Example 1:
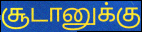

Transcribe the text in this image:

சூடானுக்கு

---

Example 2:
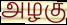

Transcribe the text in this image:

அழகு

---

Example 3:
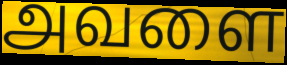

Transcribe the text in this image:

அவளை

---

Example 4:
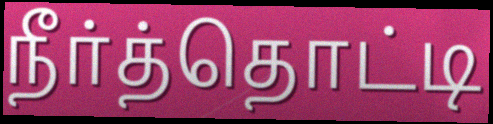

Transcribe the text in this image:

நீர்த்தொட்டி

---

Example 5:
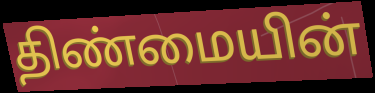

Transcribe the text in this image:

திண்மையின்